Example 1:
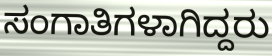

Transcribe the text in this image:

ಸಂಗಾತಿಗಳಾಗಿದ್ದರು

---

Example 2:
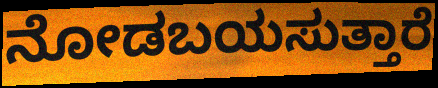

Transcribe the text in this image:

ನೋಡಬಯಸುತ್ತಾರೆ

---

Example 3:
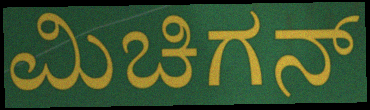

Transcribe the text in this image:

ಮಿಚಿಗನ್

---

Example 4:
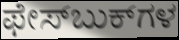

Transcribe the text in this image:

ಫೇಸ್‌ಬುಕ್‌ಗಳ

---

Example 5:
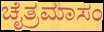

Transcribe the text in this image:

ಚೈತ್ರಮಾಸಂ